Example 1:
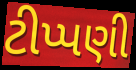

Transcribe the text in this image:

ટીપ્પણી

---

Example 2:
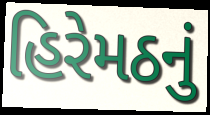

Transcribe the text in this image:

હિરેમઠનું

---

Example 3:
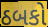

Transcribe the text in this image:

ઠબકો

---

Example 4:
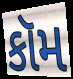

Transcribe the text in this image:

કૉમ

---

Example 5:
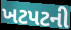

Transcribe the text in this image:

ખટપટની